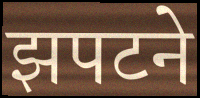
झपटने